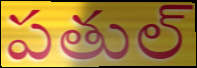
పతుల్